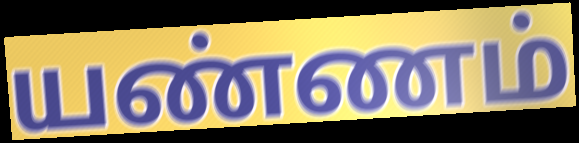
யண்ணம்